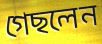
গেছলেন